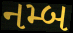
નમ્બ